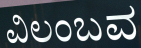
ವಿಲಂಬವ